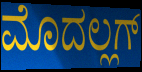
ಮೊದಲ್ಲಗ್